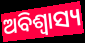
ଅବିଶ୍ୱାସ୍ୟ